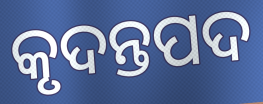
କୃଦନ୍ତପଦ